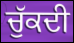
ਚੁੱਕਦੀ